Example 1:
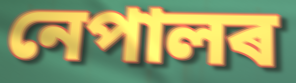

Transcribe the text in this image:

নেপালৰ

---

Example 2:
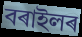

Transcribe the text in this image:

বৰাইলৰ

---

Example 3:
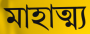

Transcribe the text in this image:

মাহাত্ম্য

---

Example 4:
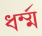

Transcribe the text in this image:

ধৰ্ম্ম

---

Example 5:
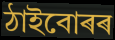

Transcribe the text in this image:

ঠাইবোৰৰ